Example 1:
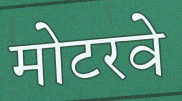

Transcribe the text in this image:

मोटरवे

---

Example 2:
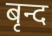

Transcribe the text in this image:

बृन्द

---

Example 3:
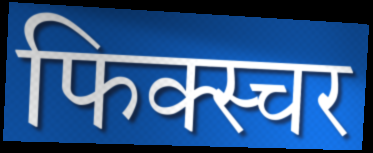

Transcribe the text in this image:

फिक्स्चर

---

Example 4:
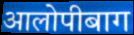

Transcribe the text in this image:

आलोपीबाग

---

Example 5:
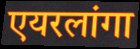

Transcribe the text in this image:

एयरलांगा